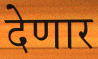
देणार